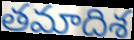
తమాదిశ